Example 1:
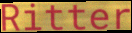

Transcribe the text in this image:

Ritter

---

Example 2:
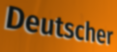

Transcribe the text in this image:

Deutscher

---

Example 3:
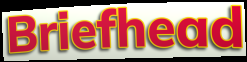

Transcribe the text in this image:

Briefhead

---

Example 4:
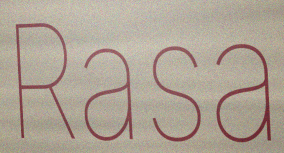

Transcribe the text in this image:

Rasa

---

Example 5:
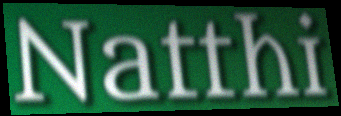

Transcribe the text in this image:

Natthi